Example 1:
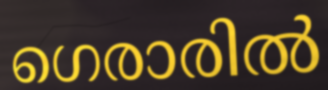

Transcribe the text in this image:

ഗെരാരിൽ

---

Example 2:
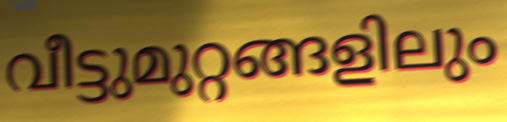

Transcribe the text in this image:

വീട്ടുമുറ്റങ്ങളിലും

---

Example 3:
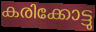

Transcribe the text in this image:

കരിക്കോട്ടു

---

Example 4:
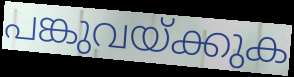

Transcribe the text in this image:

പങ്കുവയ്ക്കുക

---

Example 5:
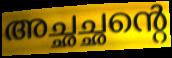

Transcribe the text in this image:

അച്ഛച്ഛന്റെ